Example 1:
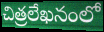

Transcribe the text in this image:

చిత్రలేఖనంలో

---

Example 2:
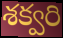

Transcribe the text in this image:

శక్వరి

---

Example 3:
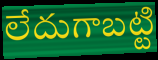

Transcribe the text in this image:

లేదుగాబట్టి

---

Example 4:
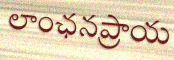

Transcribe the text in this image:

లాంఛనప్రాయ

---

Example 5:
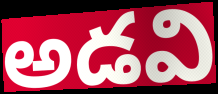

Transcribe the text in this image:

అడవి